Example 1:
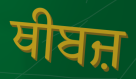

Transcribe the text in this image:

ਥੀਬਜ਼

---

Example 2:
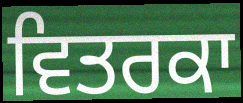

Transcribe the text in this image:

ਵਿਤਰਕਾ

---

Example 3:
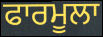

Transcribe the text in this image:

ਫਾਰਮੂਲਾ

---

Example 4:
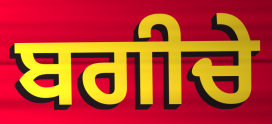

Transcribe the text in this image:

ਬਗੀਚੇ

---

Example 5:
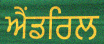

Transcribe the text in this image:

ਐਂਡਰਿਲ